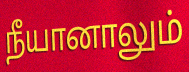
நீயானாலும்